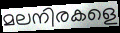
മലനിരകളെ